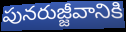
పునరుజ్జీవానికి